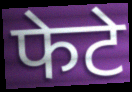
फेटे